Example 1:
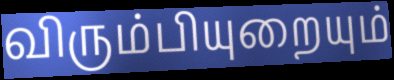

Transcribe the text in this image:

விரும்பியுறையும்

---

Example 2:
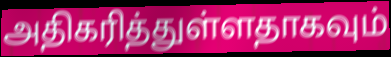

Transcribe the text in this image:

அதிகரித்துள்ளதாகவும்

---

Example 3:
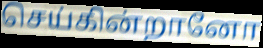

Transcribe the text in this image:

செய்கின்றானோ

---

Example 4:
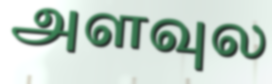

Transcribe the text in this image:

அளவுல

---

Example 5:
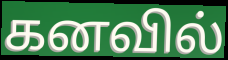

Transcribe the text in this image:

கனவில்